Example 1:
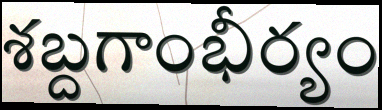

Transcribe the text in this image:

శబ్దగాంభీర్యం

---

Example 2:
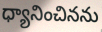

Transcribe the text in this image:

ధ్యానించినను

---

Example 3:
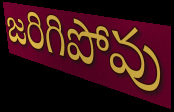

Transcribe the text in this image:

జరిగిపోవు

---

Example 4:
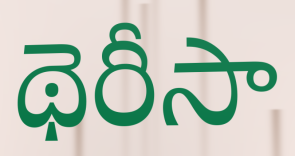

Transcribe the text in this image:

థెరీసా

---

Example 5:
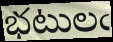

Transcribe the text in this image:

భటులఁ